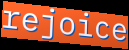
rejoice